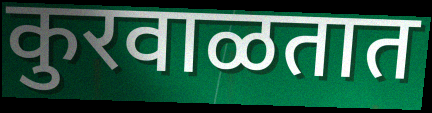
कुरवाळतात